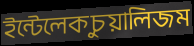
ইন্টেলেকচুয়ালিজম